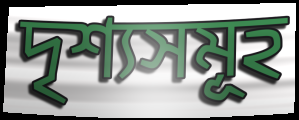
দৃশ্যসমূহ